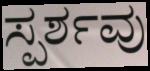
ಸ್ಪರ್ಶವು